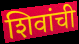
शिवांची